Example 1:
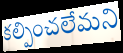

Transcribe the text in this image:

కల్పించలేమని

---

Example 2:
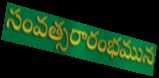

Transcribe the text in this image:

సంవత్సరారంభమున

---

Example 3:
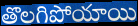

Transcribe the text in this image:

తొలగిపోయాయి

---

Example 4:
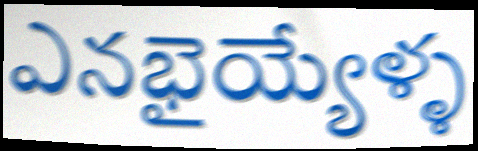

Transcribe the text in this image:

ఎనభైయ్యేళ్ళ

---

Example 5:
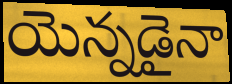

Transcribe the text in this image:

యెన్నడైనా